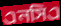
এনসিএ